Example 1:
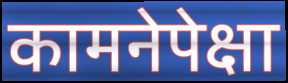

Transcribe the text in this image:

कामनेपेक्षा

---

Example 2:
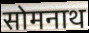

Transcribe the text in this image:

सोमनाथ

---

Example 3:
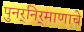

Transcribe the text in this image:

पुनर्निर्माणाचे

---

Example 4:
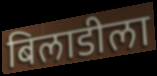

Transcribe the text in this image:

बिलाडीला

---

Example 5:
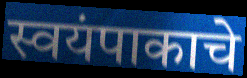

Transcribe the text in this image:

स्वयंपाकाचे